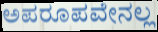
ಅಪರೂಪವೇನಲ್ಲ